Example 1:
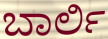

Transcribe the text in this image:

ಬಾರ್ಲಿ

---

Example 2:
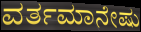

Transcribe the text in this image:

ವರ್ತಮಾನೇಷು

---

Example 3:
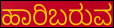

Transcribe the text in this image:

ಹಾರಿಬರುವ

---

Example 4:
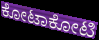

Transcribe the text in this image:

ಕೋಟಾಕೋಟಿ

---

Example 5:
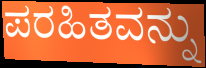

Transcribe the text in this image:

ಪರಹಿತವನ್ನು